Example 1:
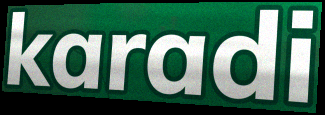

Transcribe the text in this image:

karadi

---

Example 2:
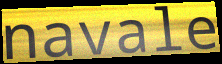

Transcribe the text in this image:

navale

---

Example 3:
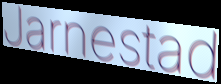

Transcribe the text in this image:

Jarnestad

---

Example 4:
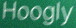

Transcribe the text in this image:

Hoogly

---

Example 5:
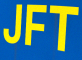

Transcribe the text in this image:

JFT